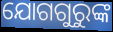
ଯୋଗଗୁରୁଙ୍କ